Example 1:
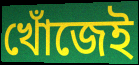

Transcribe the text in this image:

খোঁজেই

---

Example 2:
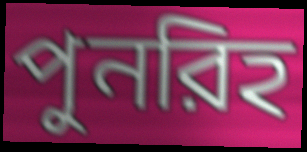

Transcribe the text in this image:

পুনরিহ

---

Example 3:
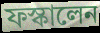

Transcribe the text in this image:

ফস্কালেন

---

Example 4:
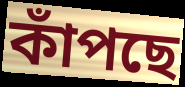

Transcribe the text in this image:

কাঁপছে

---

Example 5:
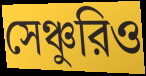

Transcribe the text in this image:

সেঞ্চুরিও